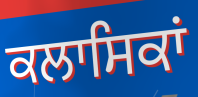
ਕਲਾਸਿਕਾਂ